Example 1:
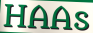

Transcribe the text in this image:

HAAs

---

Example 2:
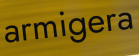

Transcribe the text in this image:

armigera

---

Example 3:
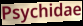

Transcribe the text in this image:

Psychidae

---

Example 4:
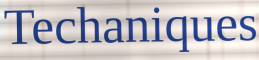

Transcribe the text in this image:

Techaniques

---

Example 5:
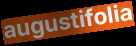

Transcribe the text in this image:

augustifolia